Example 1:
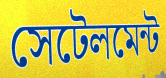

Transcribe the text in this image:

সেটেলমেন্ট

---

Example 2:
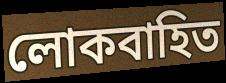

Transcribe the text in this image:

লোকবাহিত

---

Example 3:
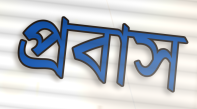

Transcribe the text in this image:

প্রবাস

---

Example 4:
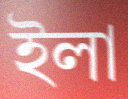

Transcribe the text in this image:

ইলা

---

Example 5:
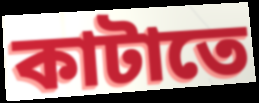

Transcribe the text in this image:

কাটাতে